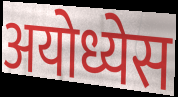
अयोध्येस